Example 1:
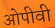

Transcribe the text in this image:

ओपीवी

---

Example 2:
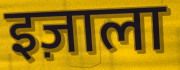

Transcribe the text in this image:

इज़ाला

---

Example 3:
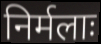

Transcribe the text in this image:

निर्मलाः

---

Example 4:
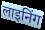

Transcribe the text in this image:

लाइनिंग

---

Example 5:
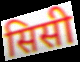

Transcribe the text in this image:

सिसी